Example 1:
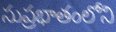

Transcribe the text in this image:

సుప్రభాతంలోని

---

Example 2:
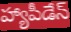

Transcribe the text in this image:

హ్యాపీడేస్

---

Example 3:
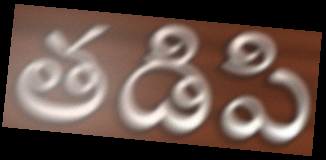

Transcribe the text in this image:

తడిపి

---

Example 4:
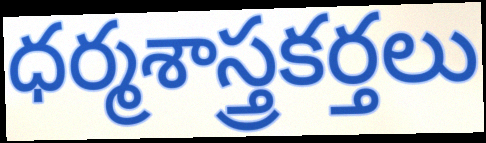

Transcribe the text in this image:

ధర్మశాస్త్రకర్తలు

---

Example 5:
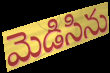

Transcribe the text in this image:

మెడిసిను